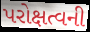
પરોક્ષત્વની